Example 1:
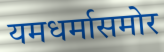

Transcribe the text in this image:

यमधर्मासमोर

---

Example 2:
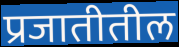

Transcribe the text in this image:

प्रजातीतील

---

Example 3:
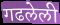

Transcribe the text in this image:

गढलेली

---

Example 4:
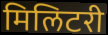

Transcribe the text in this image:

मिलिटरी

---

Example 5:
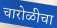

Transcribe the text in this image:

चारोळीचा